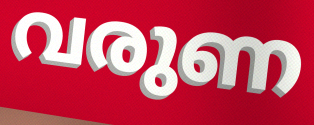
വരുണ